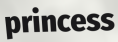
princess